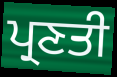
ਪ੍ਰਣਤੀ